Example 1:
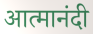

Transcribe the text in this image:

आत्मानंदी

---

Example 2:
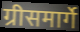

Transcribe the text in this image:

ग्रीसमार्गे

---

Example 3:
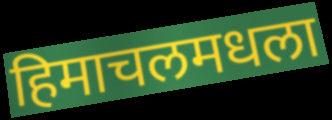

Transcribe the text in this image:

हिमाचलमधला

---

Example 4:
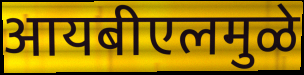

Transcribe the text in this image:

आयबीएलमुळे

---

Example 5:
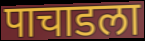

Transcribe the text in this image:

पाचाडला